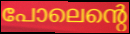
പോലെന്റെ